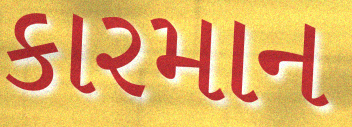
કારમાન